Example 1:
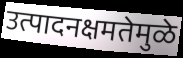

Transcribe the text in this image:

उत्पादनक्षमतेमुळे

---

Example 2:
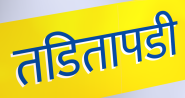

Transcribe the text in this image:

तडितापडी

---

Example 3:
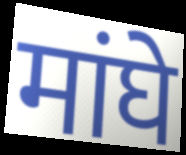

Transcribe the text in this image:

मांघे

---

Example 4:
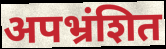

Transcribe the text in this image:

अपभ्रंशित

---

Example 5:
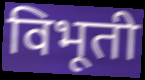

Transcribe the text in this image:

विभूती